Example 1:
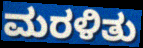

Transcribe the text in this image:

ಮರಳಿತು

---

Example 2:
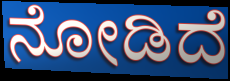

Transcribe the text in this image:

ನೋಡಿದೆ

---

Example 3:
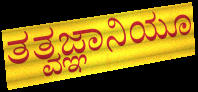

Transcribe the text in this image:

ತತ್ವಜ್ಞಾನಿಯೂ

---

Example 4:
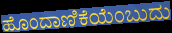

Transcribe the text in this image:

ಹೊಂದಾಣಿಕೆಯೆಂಬುದು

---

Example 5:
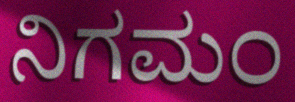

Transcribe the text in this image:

ನಿಗಮಂ